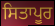
ਸਿਤਾਪੂਰ